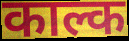
काल्क